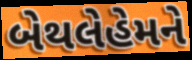
બેથલેહેમને